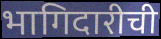
भागिदारीची